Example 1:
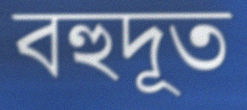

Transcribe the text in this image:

বহুদূত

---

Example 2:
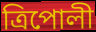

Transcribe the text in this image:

ত্রিপোলী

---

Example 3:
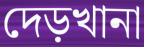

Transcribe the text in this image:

দেড়খানা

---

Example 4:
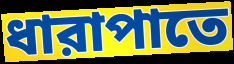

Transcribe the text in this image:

ধারাপাতে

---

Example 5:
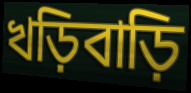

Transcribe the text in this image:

খড়িবাড়ি